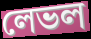
লেভল